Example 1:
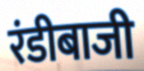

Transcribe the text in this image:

रंडीबाजी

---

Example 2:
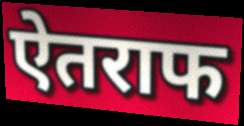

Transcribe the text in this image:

ऐतराफ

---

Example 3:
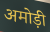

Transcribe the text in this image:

अमोड़ी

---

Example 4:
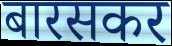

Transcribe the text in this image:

बारसकर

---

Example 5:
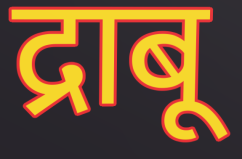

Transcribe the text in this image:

द्राबू